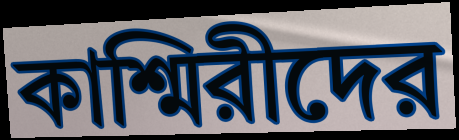
কাশ্মিরীদের